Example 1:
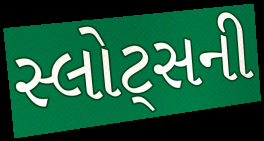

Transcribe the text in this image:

સ્લોટ્સની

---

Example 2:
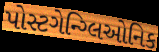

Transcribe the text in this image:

પોસ્ટગેન્ગ્લિઓનિક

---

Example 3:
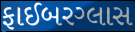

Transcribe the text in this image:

ફાઈબરગ્લાસ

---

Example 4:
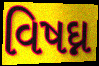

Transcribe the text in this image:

વિષઘ્ન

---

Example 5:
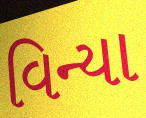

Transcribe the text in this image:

વિન્યા